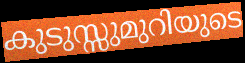
കുടുസ്സുമുറിയുടെ